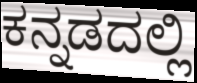
ಕನ್ನಡದಲ್ಲಿ